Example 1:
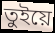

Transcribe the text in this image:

তুইয়ে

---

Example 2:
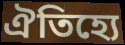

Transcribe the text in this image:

ঐতিহ্যে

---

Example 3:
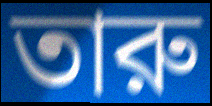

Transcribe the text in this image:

তারু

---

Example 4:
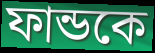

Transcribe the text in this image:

ফান্ডকে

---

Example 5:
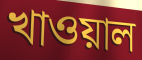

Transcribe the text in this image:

খাওয়াল